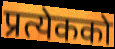
प्रत्येकको